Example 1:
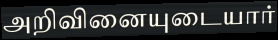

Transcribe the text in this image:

அறிவினையுடையார்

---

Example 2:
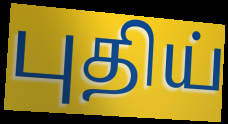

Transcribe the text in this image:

புதிய்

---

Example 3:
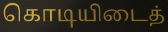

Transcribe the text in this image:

கொடியிடைத்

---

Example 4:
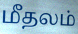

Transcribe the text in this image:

மீதலம்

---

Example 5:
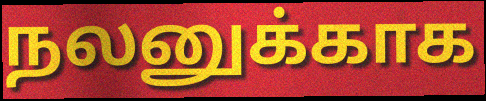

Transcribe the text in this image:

நலனுக்காக